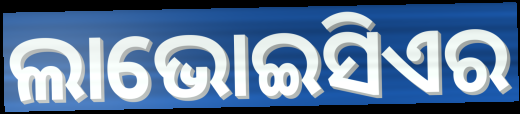
ଲାଭୋଇସିଏର